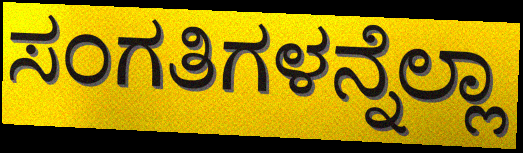
ಸಂಗತಿಗಳನ್ನೆಲ್ಲಾ